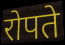
रोपते